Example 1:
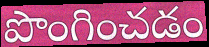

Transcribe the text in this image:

పొంగించడం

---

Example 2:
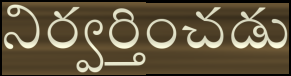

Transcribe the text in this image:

నిర్వర్తించడు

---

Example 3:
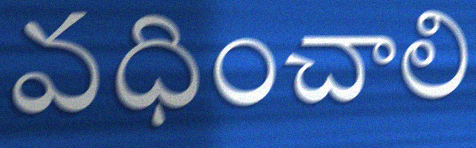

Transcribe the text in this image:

వధించాలి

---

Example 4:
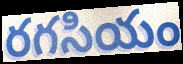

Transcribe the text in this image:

రగసియం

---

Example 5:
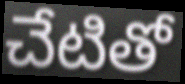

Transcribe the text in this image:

చేటితో